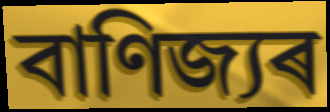
বাণিজ্যৰ